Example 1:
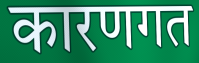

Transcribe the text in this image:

कारणगत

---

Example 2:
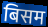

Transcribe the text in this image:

बिसम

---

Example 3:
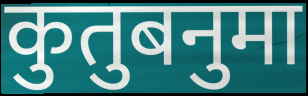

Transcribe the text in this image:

कुतुबनुमा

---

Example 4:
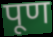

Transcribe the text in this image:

पूण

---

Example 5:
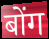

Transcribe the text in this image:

बोंग